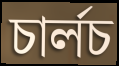
চাৰ্লচ